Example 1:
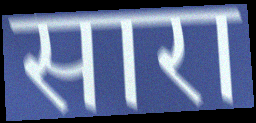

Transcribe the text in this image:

सारा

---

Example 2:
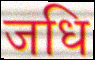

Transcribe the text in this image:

जधि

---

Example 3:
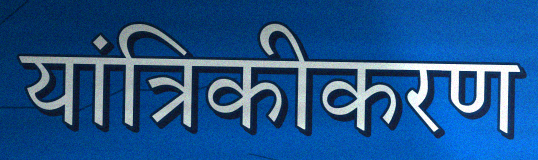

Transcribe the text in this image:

यांत्रिकीकरण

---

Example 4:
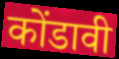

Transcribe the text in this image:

कोंडावी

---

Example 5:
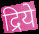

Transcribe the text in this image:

द्रिये